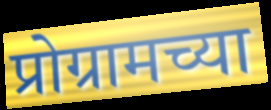
प्रोग्रामच्या